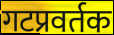
गटप्रवर्तक